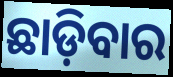
ଛାଡ଼ିବାର